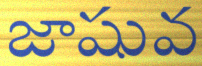
జాషువ